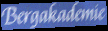
Bergakademie